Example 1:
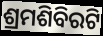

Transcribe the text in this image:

ଶ୍ରମଶିବିରଟି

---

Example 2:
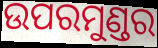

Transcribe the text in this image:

ଉପରମୁଣ୍ଡର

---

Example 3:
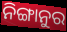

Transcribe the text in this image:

ନିଙ୍ଗାନୁର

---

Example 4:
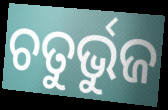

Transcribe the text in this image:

ଚତୁର୍ଭୁଜ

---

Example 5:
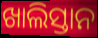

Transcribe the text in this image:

ଖାଲିସ୍ତାନ